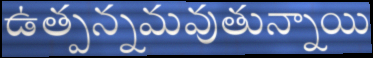
ఉత్పన్నమవుతున్నాయి